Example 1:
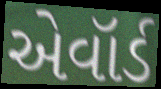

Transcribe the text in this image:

એવૉર્ડ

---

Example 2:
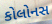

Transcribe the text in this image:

કોલોનસ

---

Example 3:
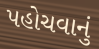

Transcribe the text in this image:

પહોચવાનું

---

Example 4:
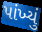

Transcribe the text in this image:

પાંખ્યું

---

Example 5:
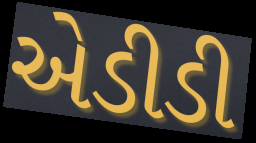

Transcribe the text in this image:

એડીડી